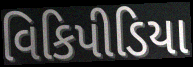
વિકિપીડિયા